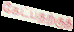
கேட்பதற்குத்